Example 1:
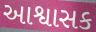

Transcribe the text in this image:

આશ્વાસક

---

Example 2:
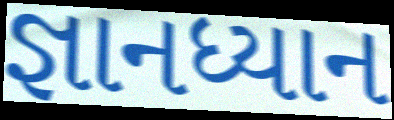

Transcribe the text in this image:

જ્ઞાનધ્યાન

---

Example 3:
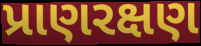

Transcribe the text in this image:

પ્રાણરક્ષણ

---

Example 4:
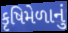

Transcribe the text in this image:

કૃષિમેળાનું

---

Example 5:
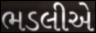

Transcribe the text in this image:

ભડલીએ